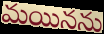
మయినను